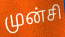
முன்சி